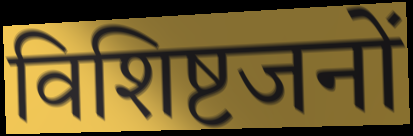
विशिष्टजनों